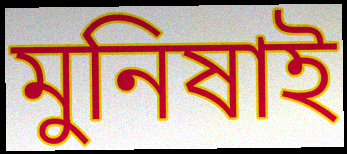
মুনিষাই